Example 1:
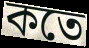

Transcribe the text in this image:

কতে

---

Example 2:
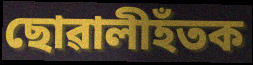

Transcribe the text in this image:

ছোৱালীহঁতক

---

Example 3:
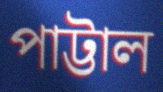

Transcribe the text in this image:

পাট্টাল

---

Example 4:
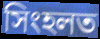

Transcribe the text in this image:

সিংহলত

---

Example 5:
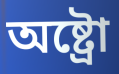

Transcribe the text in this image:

অষ্ট্ৰো